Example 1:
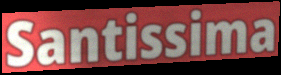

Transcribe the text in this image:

Santissima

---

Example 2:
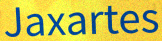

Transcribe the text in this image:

Jaxartes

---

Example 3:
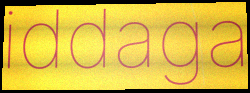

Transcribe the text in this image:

iddaga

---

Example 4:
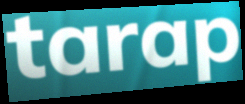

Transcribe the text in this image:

tarap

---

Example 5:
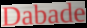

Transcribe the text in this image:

Dabade